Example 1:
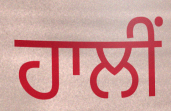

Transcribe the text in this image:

ਹਾਲੀਂ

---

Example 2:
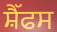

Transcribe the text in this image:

ਸ਼ੈੱਫਸ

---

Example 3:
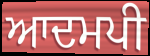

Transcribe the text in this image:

ਆਦਮਪੀ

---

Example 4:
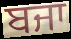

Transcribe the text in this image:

ਬਜਾ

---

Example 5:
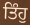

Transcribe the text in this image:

ਤਿੰਹੁ